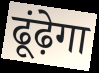
ढूंढ़ेगा